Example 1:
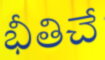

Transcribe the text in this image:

భీతిచే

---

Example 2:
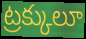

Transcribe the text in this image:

ట్రక్కులూ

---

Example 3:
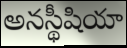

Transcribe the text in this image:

అనస్థీషియా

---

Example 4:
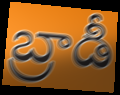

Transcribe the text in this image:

బ్రాడీ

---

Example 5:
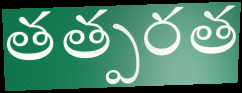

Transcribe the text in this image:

తత్పరత